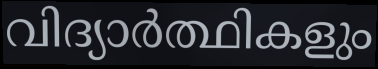
വിദ്യാർത്ഥികളും